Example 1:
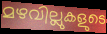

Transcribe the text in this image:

മഴവില്ലുകളുടെ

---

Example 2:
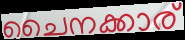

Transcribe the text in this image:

ചൈനക്കാര്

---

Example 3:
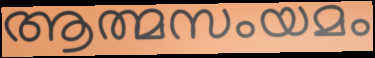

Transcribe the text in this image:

ആത്മസംയമം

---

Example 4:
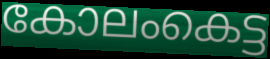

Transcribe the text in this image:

കോലംകെട്ട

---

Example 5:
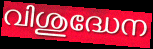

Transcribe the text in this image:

വിശുദ്ധേന